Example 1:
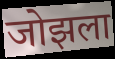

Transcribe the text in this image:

जोझला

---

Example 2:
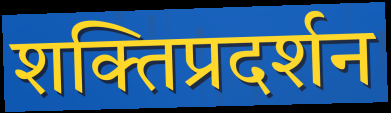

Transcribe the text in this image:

शक्तिप्रदर्शन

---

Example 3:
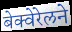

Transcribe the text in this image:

बेक्वेरेलने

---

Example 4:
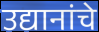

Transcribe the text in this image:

उद्यानांचे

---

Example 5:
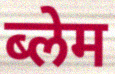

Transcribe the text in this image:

ब्लेम